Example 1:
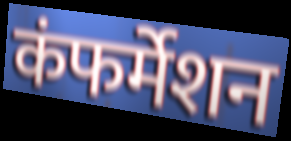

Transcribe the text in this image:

कंफर्मेशन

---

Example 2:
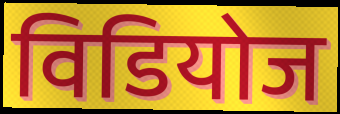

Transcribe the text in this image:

विडियोज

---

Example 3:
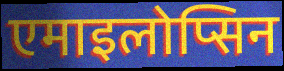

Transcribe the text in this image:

एमाइलोप्सिन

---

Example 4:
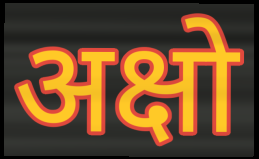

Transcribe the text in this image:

अक्षो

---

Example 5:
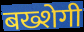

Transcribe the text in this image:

बख्शेगी